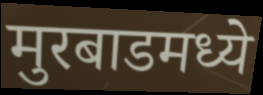
मुरबाडमध्ये